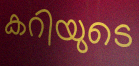
കറിയുടെ